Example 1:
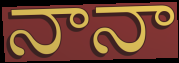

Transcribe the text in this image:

నానా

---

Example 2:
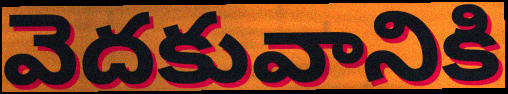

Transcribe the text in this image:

వెదకువానికి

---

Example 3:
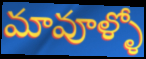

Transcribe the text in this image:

మావూళ్ళో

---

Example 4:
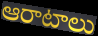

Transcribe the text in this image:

ఆరాటాలు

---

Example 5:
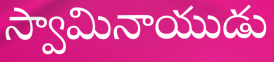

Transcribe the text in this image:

స్వామినాయుడు